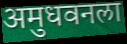
अमुधवनला